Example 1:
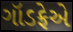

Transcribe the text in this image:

ગૉડફ્રેએ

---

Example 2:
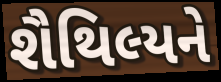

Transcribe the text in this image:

શૈથિલ્યને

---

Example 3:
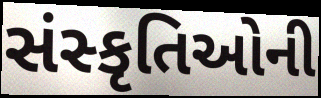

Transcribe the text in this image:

સંસ્કૃતિઓની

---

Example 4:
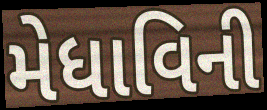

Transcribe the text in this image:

મેધાવિની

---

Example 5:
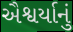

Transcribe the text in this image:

ઐશ્વર્યાનું